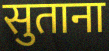
सुताना